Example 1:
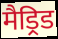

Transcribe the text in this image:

मैड्रिड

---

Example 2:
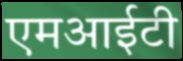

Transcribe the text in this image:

एमआईटी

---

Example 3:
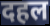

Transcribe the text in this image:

दहल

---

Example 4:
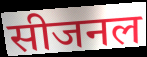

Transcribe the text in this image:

सीजनल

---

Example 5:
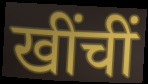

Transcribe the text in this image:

खींचीं